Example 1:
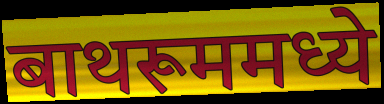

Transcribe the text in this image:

बाथरूममध्ये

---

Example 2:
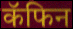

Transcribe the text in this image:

कॅफिन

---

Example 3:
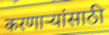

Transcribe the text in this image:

करणाऱ्यांसाठी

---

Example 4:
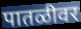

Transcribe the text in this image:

पातळीवर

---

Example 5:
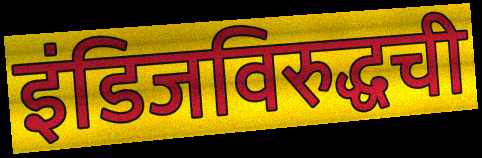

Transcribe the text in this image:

इंडिजविरुद्धची